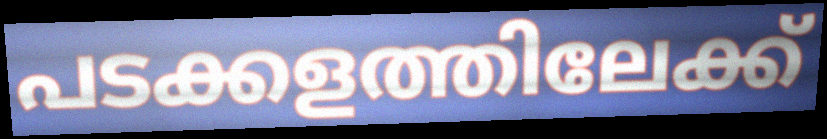
പടക്കളത്തിലേക്ക്